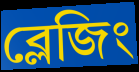
ব্লেজিং